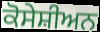
ਕੋਸੇਸ਼ੀਅਨ